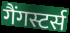
गैंगस्टर्स